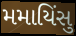
મમાયિંસુ